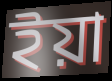
ইয়া